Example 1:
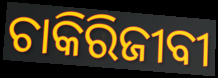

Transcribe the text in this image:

ଚାକିରିଜୀବୀ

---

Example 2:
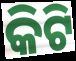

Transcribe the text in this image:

କିଟି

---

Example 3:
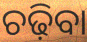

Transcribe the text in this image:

ଚଢ଼ିବା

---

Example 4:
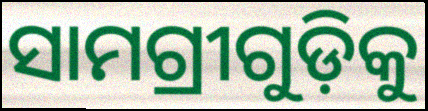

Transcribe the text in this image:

ସାମଗ୍ରୀଗୁଡ଼ିକୁ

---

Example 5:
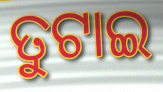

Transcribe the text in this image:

ତୁଟାଇ